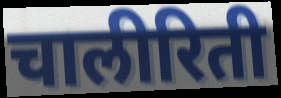
चालीरिती